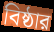
বিষ্ঠার